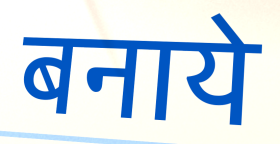
बनाये